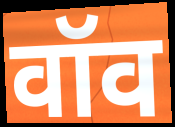
वॉव